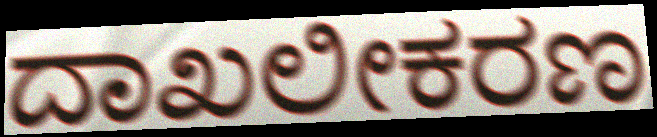
ದಾಖಲೀಕರಣ